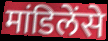
मांडिलेंसे